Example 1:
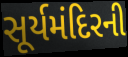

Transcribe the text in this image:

સૂર્યમંદિરની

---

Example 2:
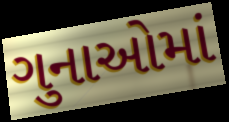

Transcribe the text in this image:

ગુનાઓમાં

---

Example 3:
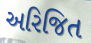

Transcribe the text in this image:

અરિજિત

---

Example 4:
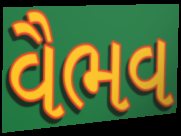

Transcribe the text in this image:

વૈભવ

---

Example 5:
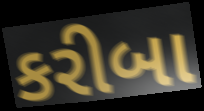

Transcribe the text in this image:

કરીબા